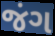
જંગ